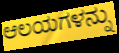
ಆಲಯಗಳನ್ನು